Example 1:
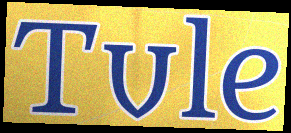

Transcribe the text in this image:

Tule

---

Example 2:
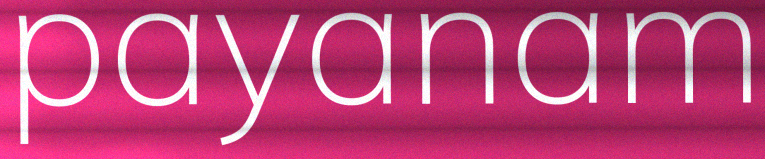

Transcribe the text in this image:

payanam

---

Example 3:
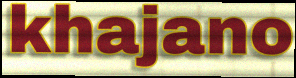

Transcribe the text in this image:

khajano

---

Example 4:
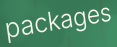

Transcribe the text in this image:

packages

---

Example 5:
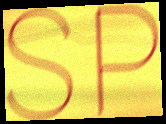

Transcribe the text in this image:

SP